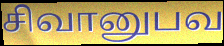
சிவானுபவ